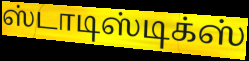
ஸ்டாடிஸ்டிக்ஸ்